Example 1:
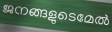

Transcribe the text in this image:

ജനങ്ങളുടെമേൽ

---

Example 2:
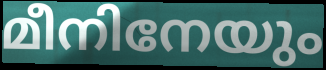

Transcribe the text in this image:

മീനിനേയും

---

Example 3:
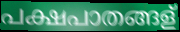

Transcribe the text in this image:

പക്ഷപാതങ്ങള്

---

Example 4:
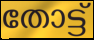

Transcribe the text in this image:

തോട്ട്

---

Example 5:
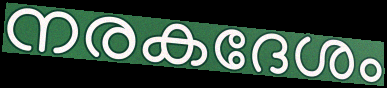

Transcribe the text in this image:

നരകദേശം